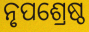
ନୃପଶ୍ରେଷ୍ଠ